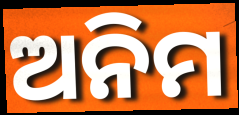
ଅନିମ